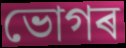
ভোগৰ